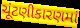
ચૂંટણીકારણમાં